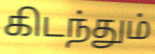
கிடந்தும்